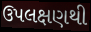
ઉપલક્ષણથી